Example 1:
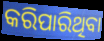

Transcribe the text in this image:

କରିପାରିଥିବା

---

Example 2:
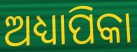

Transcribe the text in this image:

ଅଧ୍ୟାପିକା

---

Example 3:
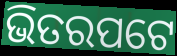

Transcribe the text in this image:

ଭିତରପଟେ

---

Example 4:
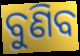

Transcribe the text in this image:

ବୁଣିବ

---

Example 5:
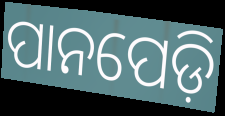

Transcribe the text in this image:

ପାନପେଡ଼ି